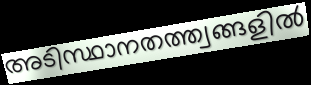
അടിസ്ഥാനതത്ത്വങ്ങളിൽ